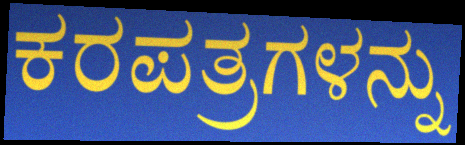
ಕರಪತ್ರಗಳನ್ನು